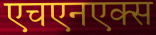
एचएनएक्स